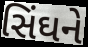
સિંઘને